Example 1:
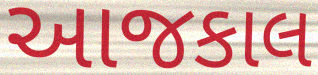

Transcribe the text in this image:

આજકાલ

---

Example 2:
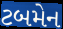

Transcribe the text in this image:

ટબમેન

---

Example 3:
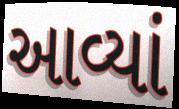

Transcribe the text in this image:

આવ્યાં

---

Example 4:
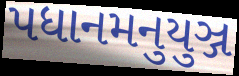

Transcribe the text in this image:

પધાનમનુયુઞ્જ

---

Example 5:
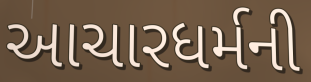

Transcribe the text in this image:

આચારધર્મની